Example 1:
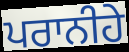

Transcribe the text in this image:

ਪਰਾਨੀਹੇ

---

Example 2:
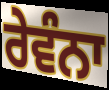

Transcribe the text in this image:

ਰੇਵੰਨਾ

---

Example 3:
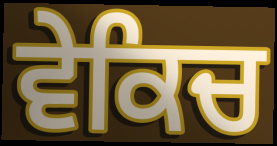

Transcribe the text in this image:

ਵੇਕਿਚ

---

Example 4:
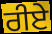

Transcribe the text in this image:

ਰੀਏ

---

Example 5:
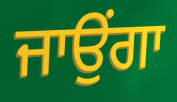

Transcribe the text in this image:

ਜਾਉਂਗਾ